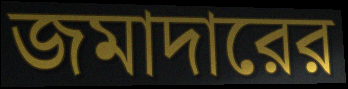
জমাদারের